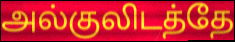
அல்குலிடத்தே